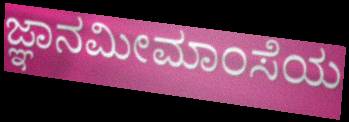
ಜ್ಞಾನಮೀಮಾಂಸೆಯ